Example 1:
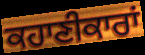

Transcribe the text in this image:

ਕਹਾਣੀਕਾਰਾਂ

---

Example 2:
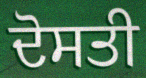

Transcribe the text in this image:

ਦੋਸਤੀ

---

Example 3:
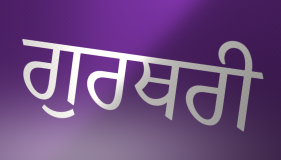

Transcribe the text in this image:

ਗੁਰਥਰੀ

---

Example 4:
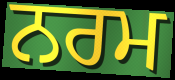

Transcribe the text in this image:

ਨਰਮ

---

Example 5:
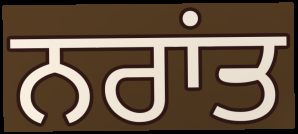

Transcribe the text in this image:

ਨਰਾਂਤ